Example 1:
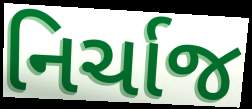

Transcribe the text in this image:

નિર્ચાજ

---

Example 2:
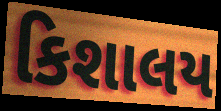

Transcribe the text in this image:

કિશાલય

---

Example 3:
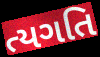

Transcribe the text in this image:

ત્યગતિ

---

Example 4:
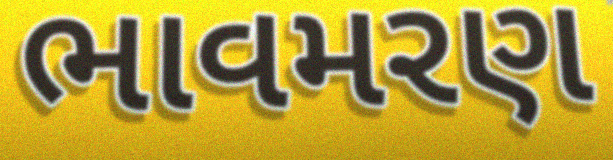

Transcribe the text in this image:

ભાવમરણ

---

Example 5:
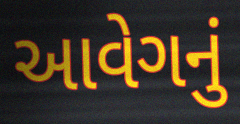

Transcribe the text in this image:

આવેગનું